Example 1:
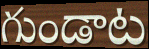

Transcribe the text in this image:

గుండాట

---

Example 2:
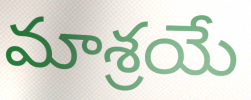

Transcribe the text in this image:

మాశ్రయే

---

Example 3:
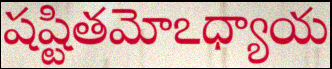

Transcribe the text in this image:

షష్టితమోఽధ్యాయ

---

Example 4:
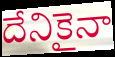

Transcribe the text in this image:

దేనికైనా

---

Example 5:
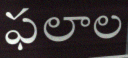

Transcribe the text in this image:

ఫలాల